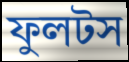
ফুলটস